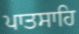
ਪਾਤਸਾਹਿ